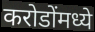
करोडोंमध्ये